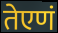
तेएणं